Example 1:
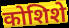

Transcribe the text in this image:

कोशिशे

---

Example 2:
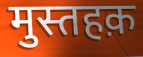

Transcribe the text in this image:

मुस्तहक़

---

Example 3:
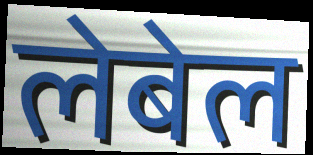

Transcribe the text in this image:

लेबेल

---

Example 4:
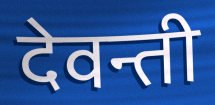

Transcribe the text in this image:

देवन्ती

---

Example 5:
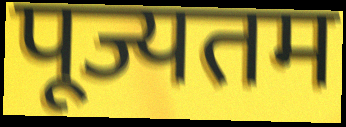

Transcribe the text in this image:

पूज्यतम